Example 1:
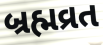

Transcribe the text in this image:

બ્રહ્મવ્રત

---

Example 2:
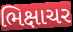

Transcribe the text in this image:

ભિક્ષાચર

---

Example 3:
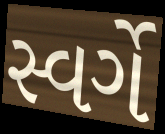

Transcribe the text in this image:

સ્વર્ગે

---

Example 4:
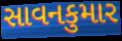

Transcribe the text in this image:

સાવનકુમાર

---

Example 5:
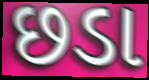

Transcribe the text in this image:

છડા